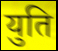
युति